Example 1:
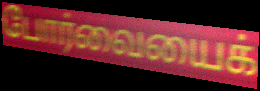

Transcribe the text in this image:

போர்வையைக்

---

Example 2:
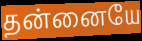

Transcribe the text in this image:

தன்னையே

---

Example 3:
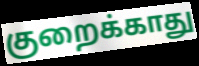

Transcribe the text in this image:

குறைக்காது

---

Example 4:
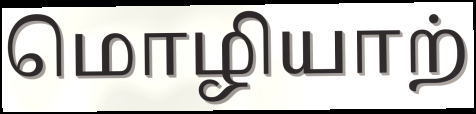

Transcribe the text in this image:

மொழியாற்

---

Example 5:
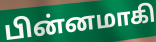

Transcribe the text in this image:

பின்னமாகி